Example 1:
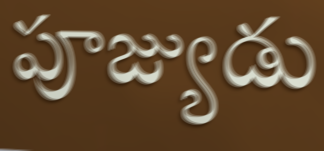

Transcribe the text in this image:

పూజ్యుడు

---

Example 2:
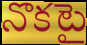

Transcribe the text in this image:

నొకటై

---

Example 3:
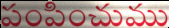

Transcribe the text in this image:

పంపించుము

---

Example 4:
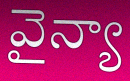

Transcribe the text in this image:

వైన్యా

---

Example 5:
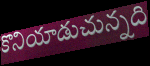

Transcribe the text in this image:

కొనియాడుచున్నది